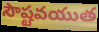
సౌష్టవయుత